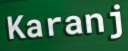
Karanj